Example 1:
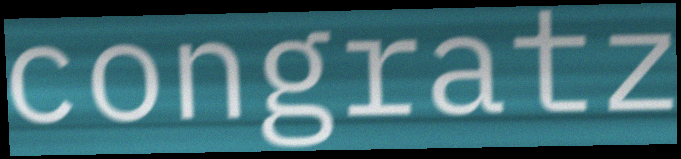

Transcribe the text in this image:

congratz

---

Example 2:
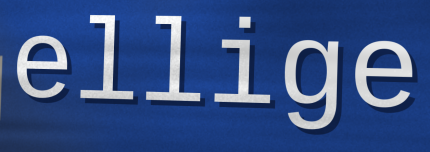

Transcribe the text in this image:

ellige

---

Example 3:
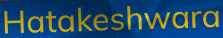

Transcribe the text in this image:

Hatakeshwara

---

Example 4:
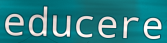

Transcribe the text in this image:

educere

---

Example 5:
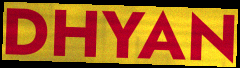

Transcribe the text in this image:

DHYAN